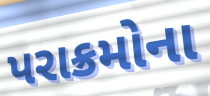
પરાક્રમોના